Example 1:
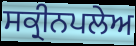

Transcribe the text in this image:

ਸਕ੍ਰੀਨਪਲੇਅ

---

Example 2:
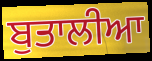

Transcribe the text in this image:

ਬੁਤਾਲੀਆ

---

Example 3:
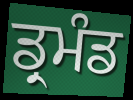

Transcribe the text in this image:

ਡ੍ਰਮੰਡ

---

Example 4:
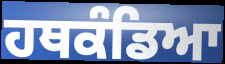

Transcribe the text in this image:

ਹਥਕੰਡਿਆ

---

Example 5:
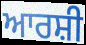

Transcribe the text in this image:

ਆਰਸ਼ੀ